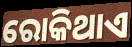
ରୋକିଥାଏ